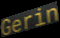
Gerin